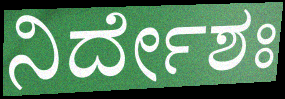
ನಿರ್ದೇಶಃ